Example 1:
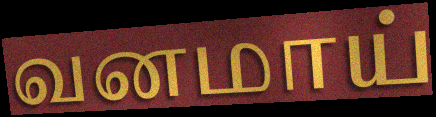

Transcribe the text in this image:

வனமாய்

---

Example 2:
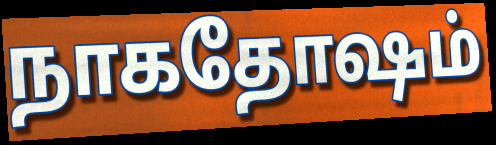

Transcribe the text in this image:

நாகதோஷம்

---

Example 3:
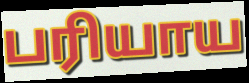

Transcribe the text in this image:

பரியாய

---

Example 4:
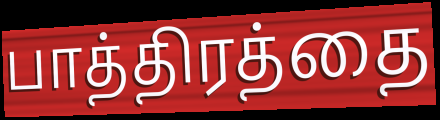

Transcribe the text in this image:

பாத்திரத்தை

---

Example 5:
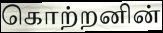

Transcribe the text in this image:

கொற்றனின்